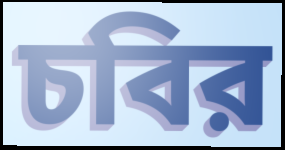
চবির